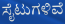
ಸೈಟುಗಳಿವೆ